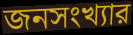
জনসংখ্যার